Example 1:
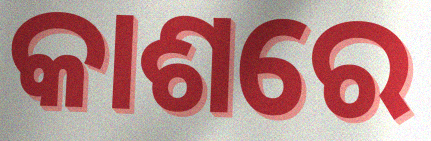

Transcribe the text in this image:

କାଶରେ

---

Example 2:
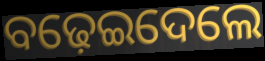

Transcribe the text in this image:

ବଢ଼େଇଦେଲେ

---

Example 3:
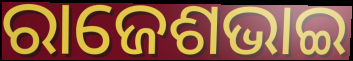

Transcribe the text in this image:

ରାଜେଶଭାଇ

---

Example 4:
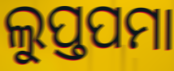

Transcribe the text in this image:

ଲୁପ୍ତପମା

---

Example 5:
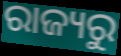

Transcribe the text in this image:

ରାଜ୍ୟରୁ